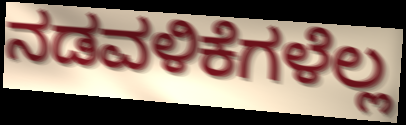
ನಡವಳಿಕೆಗಳೆಲ್ಲ